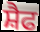
ਸ਼ੈਫ